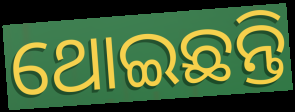
ଥୋଇଛନ୍ତି